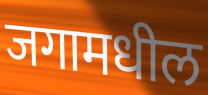
जगामधील